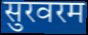
सुरवरम